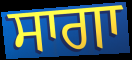
ਸਾਗਾ